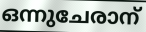
ഒന്നുചേരാന്